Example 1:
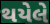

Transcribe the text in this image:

થયેલે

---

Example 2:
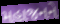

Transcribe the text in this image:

મહાજનને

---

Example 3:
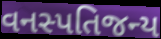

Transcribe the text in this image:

વનસ્પતિજન્ય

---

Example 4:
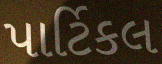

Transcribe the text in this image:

પાર્ટિકલ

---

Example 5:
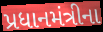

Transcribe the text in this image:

પ્રધાનમંત્રીના